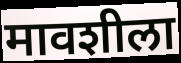
मावशीला